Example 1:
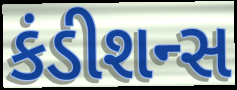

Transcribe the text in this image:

કંડીશન્સ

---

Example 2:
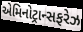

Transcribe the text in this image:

એમિનોટ્રાન્સફરેઝ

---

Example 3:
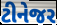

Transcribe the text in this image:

ટીનેજર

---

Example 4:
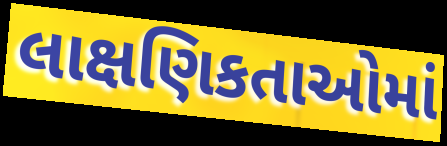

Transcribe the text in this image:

લાક્ષણિકતાઓમાં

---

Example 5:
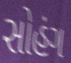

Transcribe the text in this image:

સોહંગ